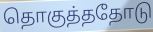
தொகுத்ததோடு